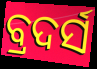
ବ୍ରଦର୍ସ